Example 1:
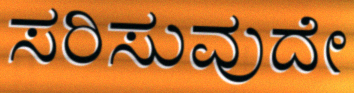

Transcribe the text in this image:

ಸರಿಸುವುದೇ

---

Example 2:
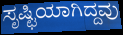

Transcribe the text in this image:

ಸೃಷ್ಟಿಯಾಗಿದ್ದವು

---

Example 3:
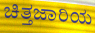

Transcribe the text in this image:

ಚಿತ್ತಜಾರಿಯ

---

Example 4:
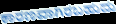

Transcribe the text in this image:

ಕಾರಣವಾಗಿರಬಹುದು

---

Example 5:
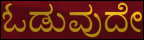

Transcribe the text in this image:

ಓಡುವುದೇ